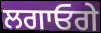
ਲਗਾਓਗੇ